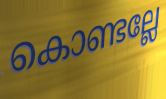
കൊണ്ടല്ലേ